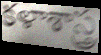
కళాశాస్త్ర